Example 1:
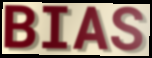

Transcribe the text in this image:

BIAS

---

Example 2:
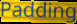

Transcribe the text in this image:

Padding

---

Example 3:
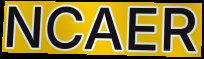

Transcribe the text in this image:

NCAER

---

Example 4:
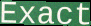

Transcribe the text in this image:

Exact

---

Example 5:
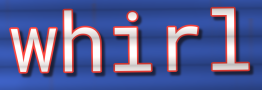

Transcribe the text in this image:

whirl